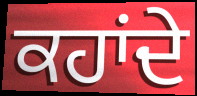
ਕਹਾਂਦੇ